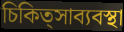
চিকিত্সাব্যবস্থা